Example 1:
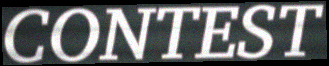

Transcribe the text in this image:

CONTEST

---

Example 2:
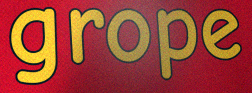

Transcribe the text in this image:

grope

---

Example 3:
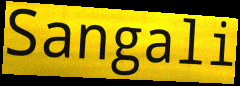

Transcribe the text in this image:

Sangali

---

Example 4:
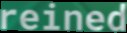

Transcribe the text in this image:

reined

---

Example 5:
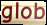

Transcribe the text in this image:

glob